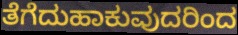
ತೆಗೆದುಹಾಕುವುದರಿಂದ